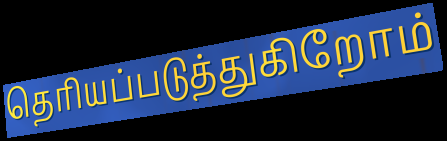
தெரியப்படுத்துகிறோம்